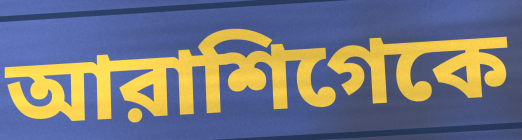
আরাশিগেকে